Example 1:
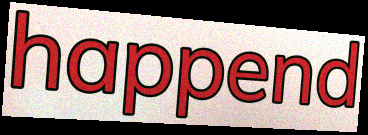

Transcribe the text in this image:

happend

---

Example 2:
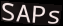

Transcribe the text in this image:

SAPs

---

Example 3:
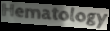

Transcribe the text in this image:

Hematology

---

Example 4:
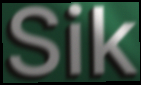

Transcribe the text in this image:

Sik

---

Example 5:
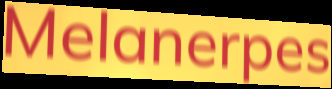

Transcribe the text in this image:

Melanerpes